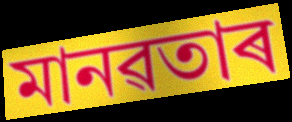
মানৱতাৰ